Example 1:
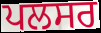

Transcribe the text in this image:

ਪਲਸਰ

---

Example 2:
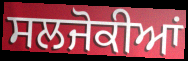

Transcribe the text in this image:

ਸਲਜੋਕੀਆਂ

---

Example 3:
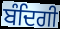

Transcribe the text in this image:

ਬੰਦਿਗੀ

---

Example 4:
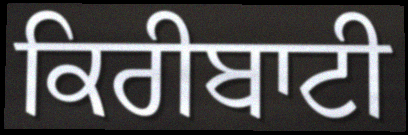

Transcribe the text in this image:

ਕਿਰੀਬਾਟੀ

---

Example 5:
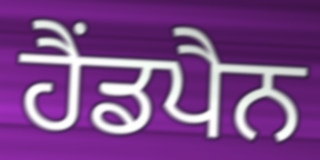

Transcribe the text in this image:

ਹੈਂਡਪੈਨ